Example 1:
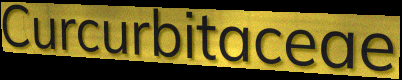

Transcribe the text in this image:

Curcurbitaceae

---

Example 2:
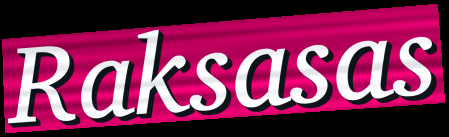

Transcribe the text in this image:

Raksasas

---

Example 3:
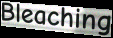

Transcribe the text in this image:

Bleaching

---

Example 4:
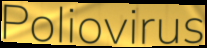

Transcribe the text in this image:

Poliovirus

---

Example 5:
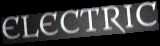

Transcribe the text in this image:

ELECTRIC